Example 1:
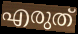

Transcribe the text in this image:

എരുത്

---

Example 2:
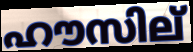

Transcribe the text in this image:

ഹൗസില്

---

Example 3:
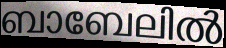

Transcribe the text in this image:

ബാബേലിൽ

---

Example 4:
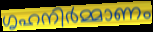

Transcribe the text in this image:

ഗൃഹനിർമ്മാണം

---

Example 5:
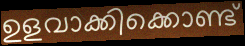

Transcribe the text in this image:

ഉളവാക്കിക്കൊണ്ട്